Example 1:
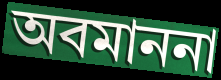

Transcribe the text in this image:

অবমাননা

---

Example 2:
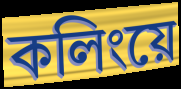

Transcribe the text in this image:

কলিংয়ে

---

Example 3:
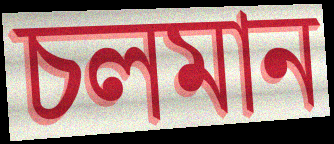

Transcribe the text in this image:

চলমান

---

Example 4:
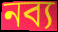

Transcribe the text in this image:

নব্য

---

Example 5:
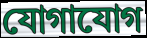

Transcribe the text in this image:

যোগাযোগ